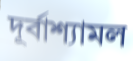
দূর্বাশ্যামল